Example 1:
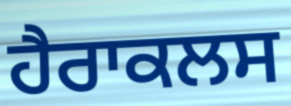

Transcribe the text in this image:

ਹੈਰਾਕਲਸ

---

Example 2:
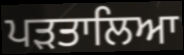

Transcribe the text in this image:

ਪੜਤਾਲਿਆ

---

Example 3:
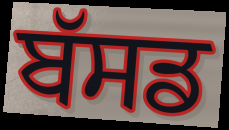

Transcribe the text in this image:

ਬੱਸਡ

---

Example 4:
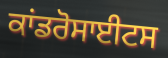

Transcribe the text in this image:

ਕਾਂਡਰੋਸਾਈਟਸ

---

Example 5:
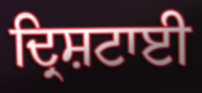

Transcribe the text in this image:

ਦ੍ਰਿਸ਼ਟਾਈ